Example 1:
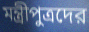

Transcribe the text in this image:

মন্ত্রীপুত্রদের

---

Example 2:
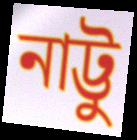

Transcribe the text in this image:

নাট্টু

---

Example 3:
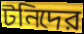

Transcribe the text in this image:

টনিদের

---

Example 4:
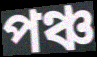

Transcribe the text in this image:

পঞ্চ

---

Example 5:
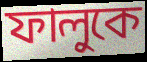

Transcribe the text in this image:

ফালুকে